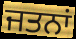
ਜਤਨਾਂ